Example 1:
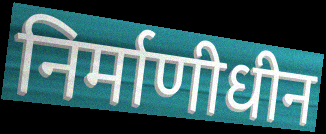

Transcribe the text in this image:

निर्माणीधीन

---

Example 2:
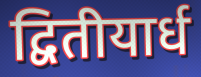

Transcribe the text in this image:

द्वितीयार्ध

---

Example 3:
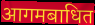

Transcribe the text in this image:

आगमबाधित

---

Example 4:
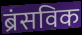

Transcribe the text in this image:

ब्रंसविक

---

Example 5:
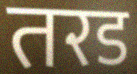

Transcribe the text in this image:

तरड